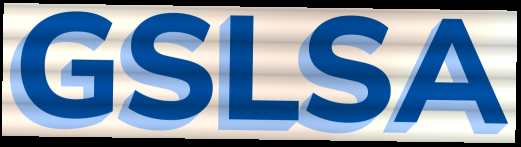
GSLSA